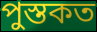
পুস্তকত